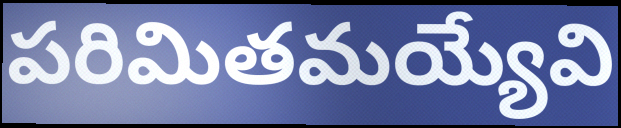
పరిమితమయ్యేవి